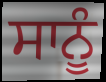
ਸਾਨੂੰ